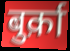
बुर्क़ा